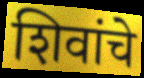
शिवांचे